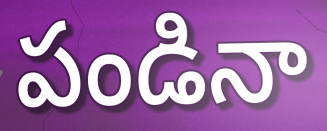
పండినా